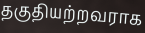
தகுதியற்றவராக